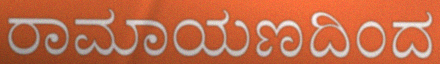
ರಾಮಾಯಣದಿಂದ